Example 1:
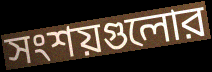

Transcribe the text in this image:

সংশয়গুলোর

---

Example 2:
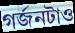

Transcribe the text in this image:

গর্জনটাও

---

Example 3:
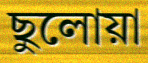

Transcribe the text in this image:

ছুলোয়া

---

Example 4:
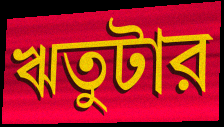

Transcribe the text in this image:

ঋতুটার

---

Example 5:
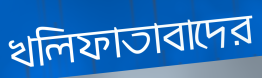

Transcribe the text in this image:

খলিফাতাবাদের